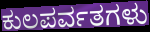
ಕುಲಪರ್ವತಗಳು